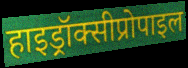
हाइड्रॉक्सीप्रोपाइल